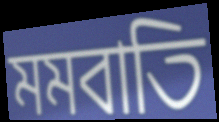
মমবাতি